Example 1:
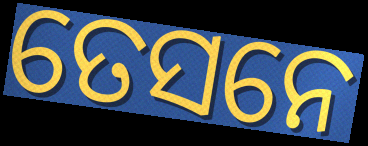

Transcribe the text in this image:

ତେସନେ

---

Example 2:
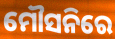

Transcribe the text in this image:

ମୌସନିରେ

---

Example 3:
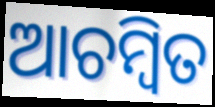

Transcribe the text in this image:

ଆଚମ୍ବିତ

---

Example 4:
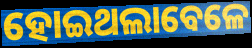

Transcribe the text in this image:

ହୋଇଥଲାବେଳେ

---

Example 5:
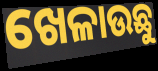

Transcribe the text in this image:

ଖେଳାଉଛୁ